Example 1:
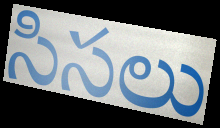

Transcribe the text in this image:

సిసలు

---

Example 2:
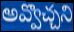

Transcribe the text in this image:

అవ్వొచ్చని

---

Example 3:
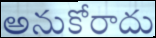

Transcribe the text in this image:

అనుకోరాదు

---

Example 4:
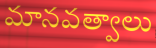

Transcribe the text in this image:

మానవత్వాలు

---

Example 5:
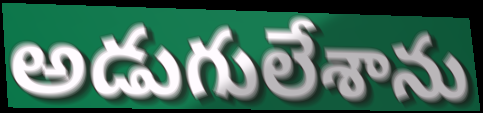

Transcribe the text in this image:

అడుగులేశాను